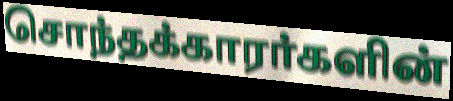
சொந்தக்காரர்களின்